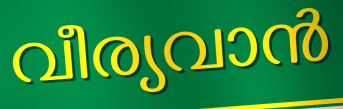
വീര്യവാൻ